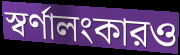
স্বর্ণালংকারও